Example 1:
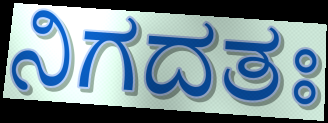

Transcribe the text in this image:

ನಿಗದತಃ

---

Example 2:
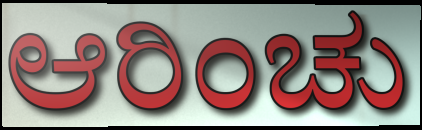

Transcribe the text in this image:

ಆರಿಂಚು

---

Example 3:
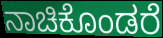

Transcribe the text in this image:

ನಾಚಿಕೊಂಡರೆ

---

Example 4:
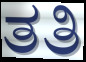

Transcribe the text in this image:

ತತಿ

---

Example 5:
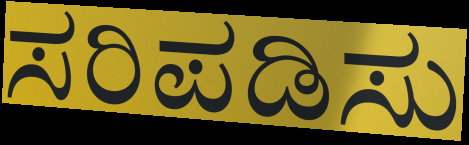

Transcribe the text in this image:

ಸರಿಪಡಿಸು